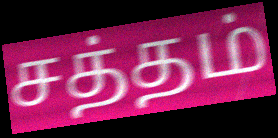
சத்தம்